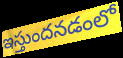
ఇస్తుందనడంలో